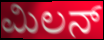
ಮಿಲನ್